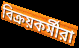
বিক্রয়কর্মীরা